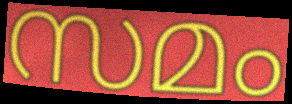
സമം